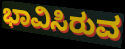
ಭಾವಿಸಿರುವ